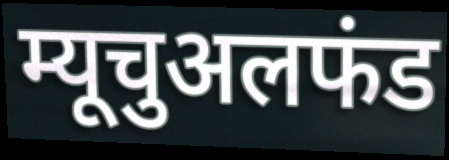
म्यूचुअलफंड